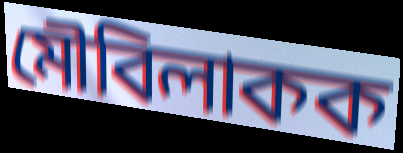
মৌবিলাকক